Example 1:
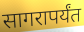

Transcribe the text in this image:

सागरापर्यंत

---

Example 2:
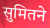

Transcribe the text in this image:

सुमितने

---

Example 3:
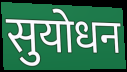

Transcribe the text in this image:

सुयोधन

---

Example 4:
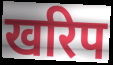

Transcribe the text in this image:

खरिप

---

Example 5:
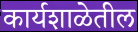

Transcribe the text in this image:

कार्यशाळेतील